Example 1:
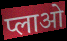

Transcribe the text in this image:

प्लाओ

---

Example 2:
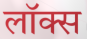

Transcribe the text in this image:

लॉक्स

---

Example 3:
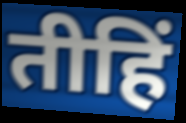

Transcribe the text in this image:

तीहिं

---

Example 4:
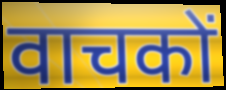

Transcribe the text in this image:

वाचकों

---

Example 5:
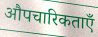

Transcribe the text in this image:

औपचारिकताएँ